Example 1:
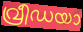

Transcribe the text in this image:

വ്രീഡയാ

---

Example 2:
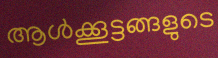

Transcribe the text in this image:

ആൾക്കൂട്ടങ്ങളുടെ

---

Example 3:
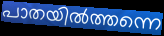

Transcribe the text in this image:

പാതയിൽത്തന്നെ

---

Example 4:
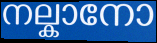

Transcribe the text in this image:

നല്കാനോ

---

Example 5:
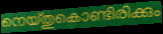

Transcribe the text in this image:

നെയ്തുകൊണ്ടിരിക്കും